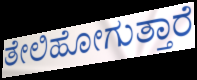
ತೇಲಿಹೋಗುತ್ತಾರೆ